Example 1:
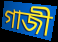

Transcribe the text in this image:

গাজী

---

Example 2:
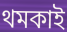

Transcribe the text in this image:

থমকাই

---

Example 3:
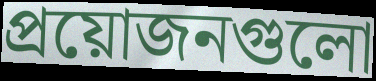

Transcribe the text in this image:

প্রয়োজনগুলো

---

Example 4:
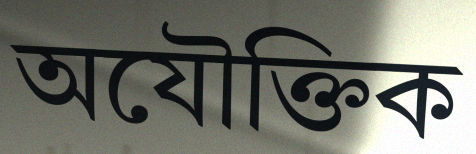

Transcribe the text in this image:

অযৌক্তিক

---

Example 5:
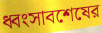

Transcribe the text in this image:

ধ্বংসাবশেষের